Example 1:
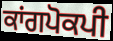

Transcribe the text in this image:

ਕਾਂਗਪੋਕਪੀ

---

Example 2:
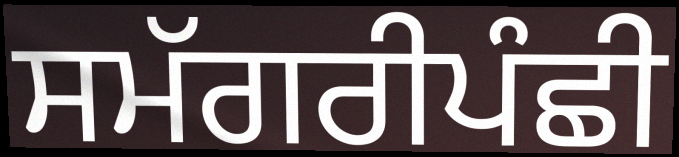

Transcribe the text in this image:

ਸਮੱਗਰੀਪੰਛੀ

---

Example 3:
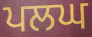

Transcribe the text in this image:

ਪਲਘ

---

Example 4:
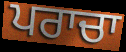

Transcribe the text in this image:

ਪਰਾਚਾ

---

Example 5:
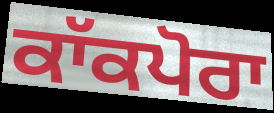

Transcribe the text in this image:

ਕਾੱਕਪੋਰਾ